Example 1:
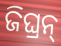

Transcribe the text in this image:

ଜିଘ୍ରନ୍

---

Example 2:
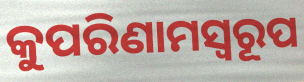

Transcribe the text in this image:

କୁପରିଣାମସ୍ୱରୂପ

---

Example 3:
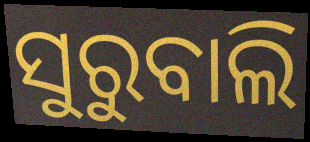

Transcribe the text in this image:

ସୁରୁବାଲି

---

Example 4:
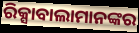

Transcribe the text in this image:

ରିକ୍ସାବାଲାମାନଙ୍କର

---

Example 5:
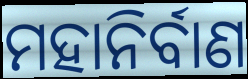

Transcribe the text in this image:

ମହାନିର୍ବାଣ